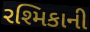
રશ્મિકાની